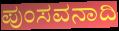
ಪುಂಸವನಾದಿ